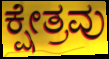
ಕ್ಷೇತ್ರವು